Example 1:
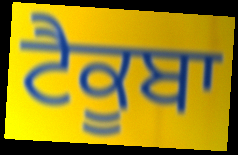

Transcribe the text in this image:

ਟੈਕੂਬਾ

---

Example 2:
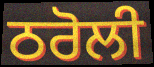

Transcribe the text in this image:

ਠਰੋਲੀ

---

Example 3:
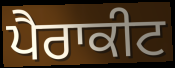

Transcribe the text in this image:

ਪੈਰਾਕੀਟ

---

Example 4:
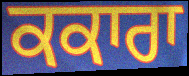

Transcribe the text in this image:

ਕਕਾਰਾ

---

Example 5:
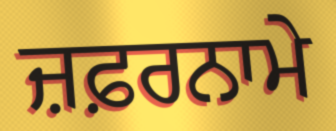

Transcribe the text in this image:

ਜ਼ਫ਼ਰਨਾਮੇ